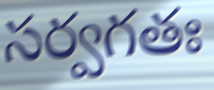
సర్వగతః